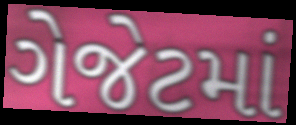
ગેજેટમાં